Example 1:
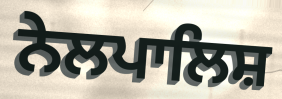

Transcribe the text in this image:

ਨੇਲਪਾਲਿਸ਼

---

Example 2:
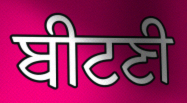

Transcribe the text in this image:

ਬੀਟਣੀ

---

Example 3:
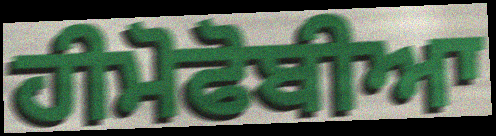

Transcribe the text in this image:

ਹੀਮੋਫੋਬੀਆ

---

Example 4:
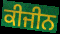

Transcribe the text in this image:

ਕੀਜੀਨ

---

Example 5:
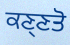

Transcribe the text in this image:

ਕਣ੍ਣਤੋ